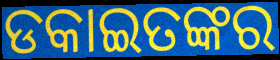
ଡକାଇତଙ୍କର